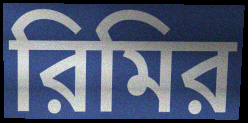
রিমির